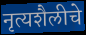
नृत्यशैलीचे